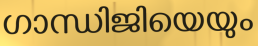
ഗാന്ധിജിയെയും